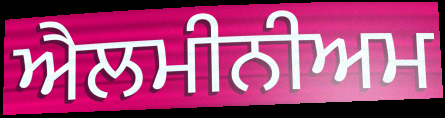
ਐਲਮੀਨੀਅਮ